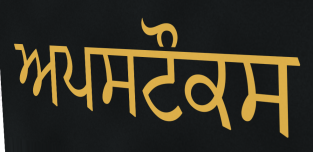
ਅਪਸਟੌਕਸ